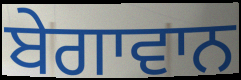
ਬੇਗਾਵਾਨ